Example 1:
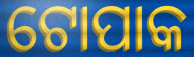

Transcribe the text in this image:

ଟୋପାକ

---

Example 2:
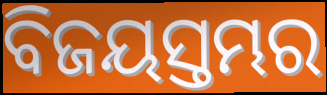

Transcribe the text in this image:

ବିଜୟସ୍ତମ୍ଭର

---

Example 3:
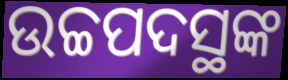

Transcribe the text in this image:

ଉଚ୍ଚପଦସ୍ଥଙ୍କ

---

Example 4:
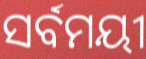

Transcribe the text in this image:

ସର୍ବମୟୀ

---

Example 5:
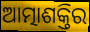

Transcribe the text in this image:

ଆତ୍ମାଶକ୍ତିର